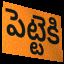
పెట్టెకి